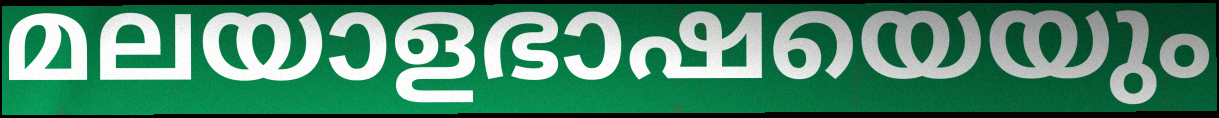
മലയാളഭാഷയെയും